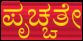
ಪೃಚ್ಚತೇ